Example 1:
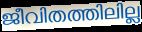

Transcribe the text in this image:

ജീവിതത്തിലില്ല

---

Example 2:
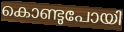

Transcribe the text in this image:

കൊണ്ടുപോയി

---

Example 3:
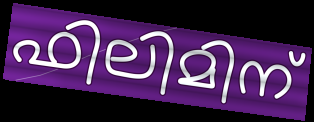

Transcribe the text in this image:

ഫിലിമിന്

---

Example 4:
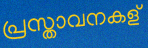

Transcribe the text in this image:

പ്രസ്താവനകള്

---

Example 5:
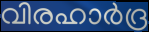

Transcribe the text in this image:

വിരഹാർദ്ര